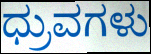
ಧ್ರುವಗಳು